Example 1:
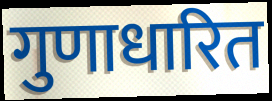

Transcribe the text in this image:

गुणाधारित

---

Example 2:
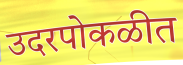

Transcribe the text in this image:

उदरपोकळीत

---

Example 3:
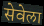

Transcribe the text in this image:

सेवेला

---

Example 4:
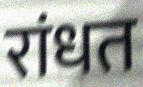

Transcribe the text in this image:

रांधत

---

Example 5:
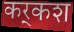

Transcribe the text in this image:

कर्कश